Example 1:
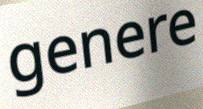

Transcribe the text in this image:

genere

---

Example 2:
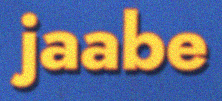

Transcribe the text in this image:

jaabe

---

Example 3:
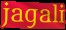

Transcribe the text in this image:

jagali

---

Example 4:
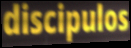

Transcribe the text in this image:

discipulos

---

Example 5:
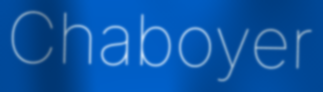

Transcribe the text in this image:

Chaboyer